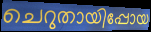
ചെറുതായിപ്പോയ